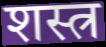
शस्त्र